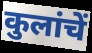
कुलांचें